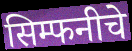
सिम्फनीचे